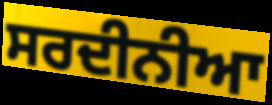
ਸਰਦੀਨੀਆ